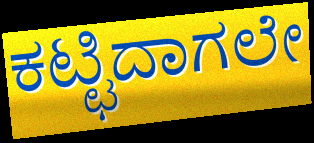
ಕಟ್ಟಿದಾಗಲೇ